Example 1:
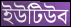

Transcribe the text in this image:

ইউটিউব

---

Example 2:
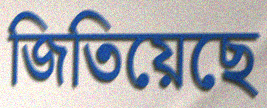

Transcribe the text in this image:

জিতিয়েছে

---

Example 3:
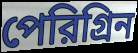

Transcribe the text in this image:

পেরিগ্রিন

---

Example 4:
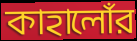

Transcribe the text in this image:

কাহালোঁর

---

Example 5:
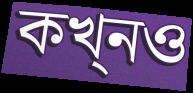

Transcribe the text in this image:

কখ্নও